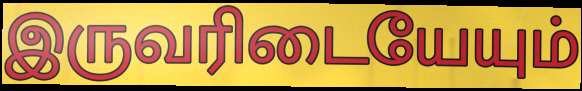
இருவரிடையேயும்